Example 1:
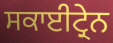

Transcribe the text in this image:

ਸਕਾਈਟ੍ਰੇਨ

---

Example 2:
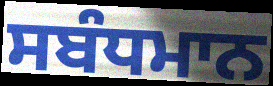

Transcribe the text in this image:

ਸਬੰਧਮਾਨ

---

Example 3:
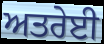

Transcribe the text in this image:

ਅਤਰੇਈ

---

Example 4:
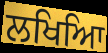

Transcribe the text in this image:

ਲਖਿਆਿ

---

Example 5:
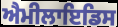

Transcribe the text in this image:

ਐਮੀਲਾਇਡਿਸ